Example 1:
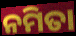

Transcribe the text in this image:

ନମିତା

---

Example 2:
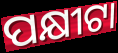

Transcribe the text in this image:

ପକ୍ଷୀଟା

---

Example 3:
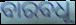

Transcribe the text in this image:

ବାରବଧୂ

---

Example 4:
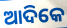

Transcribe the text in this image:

ଆଦିକେ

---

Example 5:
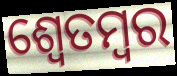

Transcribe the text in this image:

ଶ୍ଵେତମ୍ବର